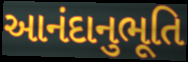
આનંદાનુભૂતિ